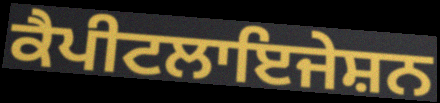
ਕੈਪੀਟਲਾਇਜੇਸ਼ਨ